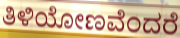
ತಿಳಿಯೋಣವೆಂದರೆ